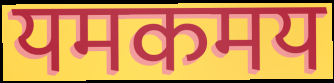
यमकमय